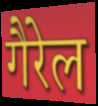
गैरेल